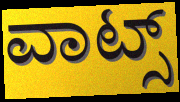
ವಾಟ್ಸ್